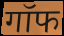
गॉफ